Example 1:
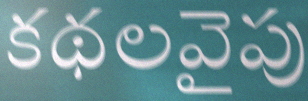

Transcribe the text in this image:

కథలవైపు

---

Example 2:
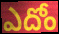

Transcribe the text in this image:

ఎదోం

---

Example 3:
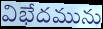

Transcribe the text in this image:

విభేదమును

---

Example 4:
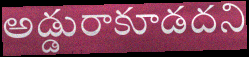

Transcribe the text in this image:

అడ్డురాకూడదని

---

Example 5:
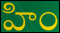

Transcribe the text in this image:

హిం